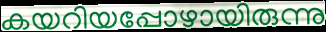
കയറിയപ്പോഴായിരുന്നു